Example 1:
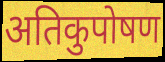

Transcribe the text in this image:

अतिकुपोषण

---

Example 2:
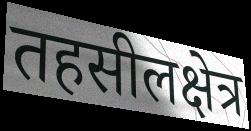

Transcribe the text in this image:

तहसीलक्षेत्र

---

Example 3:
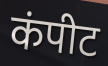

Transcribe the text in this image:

कंपीट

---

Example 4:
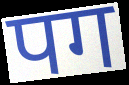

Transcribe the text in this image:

पग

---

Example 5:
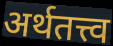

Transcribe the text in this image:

अर्थतत्त्व